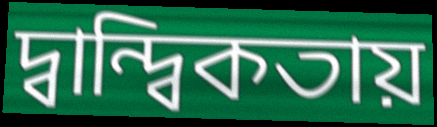
দ্বান্দ্বিকতায়